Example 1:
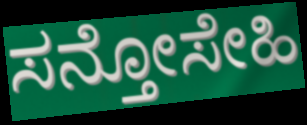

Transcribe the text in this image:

ಸನ್ತೋಸೇಹಿ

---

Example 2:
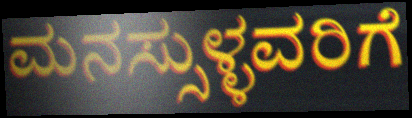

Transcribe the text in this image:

ಮನಸ್ಸುಳ್ಳವರಿಗೆ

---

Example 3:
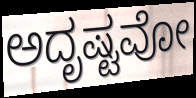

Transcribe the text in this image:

ಅದೃಷ್ಟವೋ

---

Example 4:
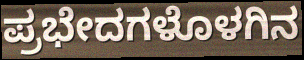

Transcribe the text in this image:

ಪ್ರಭೇದಗಳೊಳಗಿನ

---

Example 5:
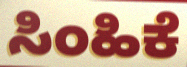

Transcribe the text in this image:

ಸಿಂಹಿಕೆ